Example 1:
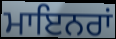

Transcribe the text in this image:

ਮਾਇਨਰਾਂ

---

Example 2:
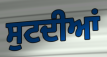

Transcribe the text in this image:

ਸੁਟਦੀਆਂ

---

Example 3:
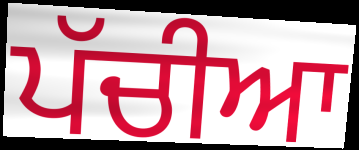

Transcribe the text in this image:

ਪੱਚੀਆ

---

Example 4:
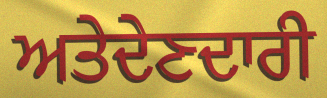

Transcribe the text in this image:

ਅਤੇਦੇਣਦਾਰੀ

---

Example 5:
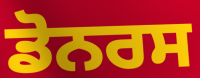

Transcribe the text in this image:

ਡੋਨਰਸ